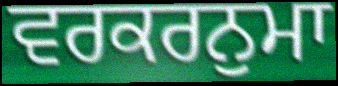
ਵਰਕਰਨੁਮਾ